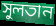
সুলতান